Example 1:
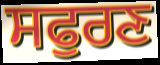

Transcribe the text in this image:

ਸਫੁਰਣ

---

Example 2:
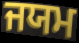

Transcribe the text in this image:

ਜਯਮ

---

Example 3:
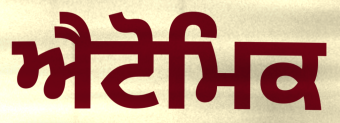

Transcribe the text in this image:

ਐਟੋਮਿਕ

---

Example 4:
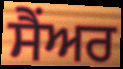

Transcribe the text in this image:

ਸੈਂਅਰ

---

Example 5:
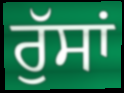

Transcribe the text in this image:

ਰੁੱਸਾਂ